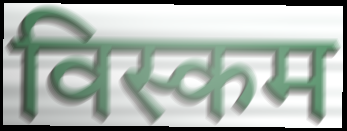
विस्कम